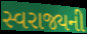
સ્વરાજ્યની